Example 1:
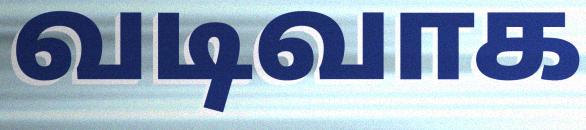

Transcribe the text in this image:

வடிவாக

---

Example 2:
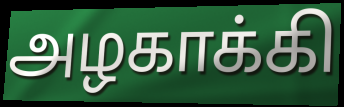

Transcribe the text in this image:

அழகாக்கி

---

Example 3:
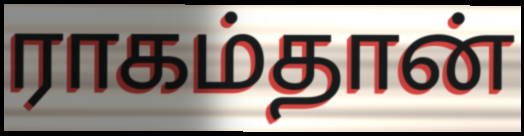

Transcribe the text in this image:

ராகம்தான்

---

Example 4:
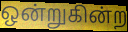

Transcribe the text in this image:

ஒன்றுகின்ற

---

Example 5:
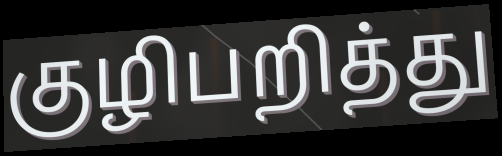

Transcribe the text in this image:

குழிபறித்து